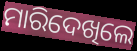
ମାରିଦେଖିଲେ